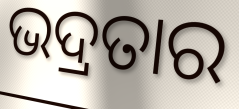
ଭଦ୍ରତାର